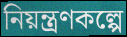
নিয়ন্ত্রণকল্পে